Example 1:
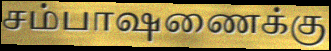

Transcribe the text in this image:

சம்பாஷணைக்கு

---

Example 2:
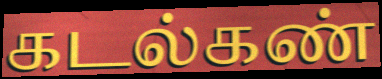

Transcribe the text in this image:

கடல்கண்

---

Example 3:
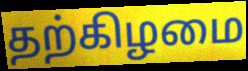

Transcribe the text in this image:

தற்கிழமை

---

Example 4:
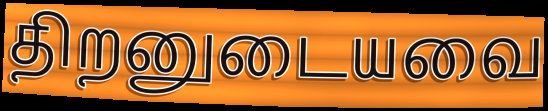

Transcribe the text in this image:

திறனுடையவை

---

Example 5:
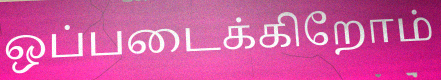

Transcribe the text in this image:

ஒப்படைக்கிறோம்